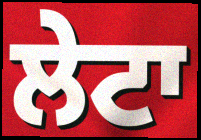
ਲੇਟਾ